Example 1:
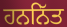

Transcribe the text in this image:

ਹਨਨਿੱਤ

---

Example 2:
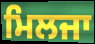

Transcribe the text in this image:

ਮਿਲਜਾ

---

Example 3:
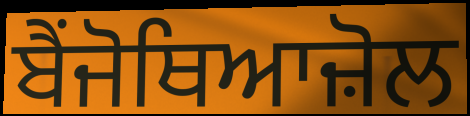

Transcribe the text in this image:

ਬੈਂਜੋਥਿਆਜ਼ੋਲ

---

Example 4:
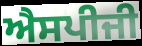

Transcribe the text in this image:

ਐਸਪੀਜੀ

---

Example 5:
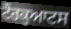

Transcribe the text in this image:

ਟੌਰਕੁਆਟਸ